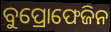
ବୁପ୍ରୋଫେଜିନ